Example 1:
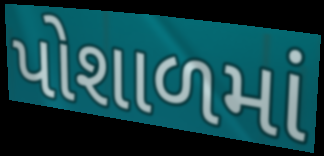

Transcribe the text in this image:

પોશાળમાં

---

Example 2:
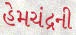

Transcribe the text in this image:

હેમચંદ્રની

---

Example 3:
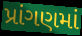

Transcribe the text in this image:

પ્રાંગણમાં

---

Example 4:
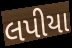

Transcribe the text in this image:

લપીયા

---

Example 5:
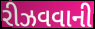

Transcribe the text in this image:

રીઝવવાની